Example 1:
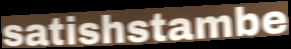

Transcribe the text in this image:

satishstambe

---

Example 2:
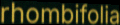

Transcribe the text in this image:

rhombifolia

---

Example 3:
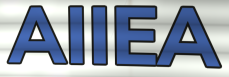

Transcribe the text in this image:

AIIEA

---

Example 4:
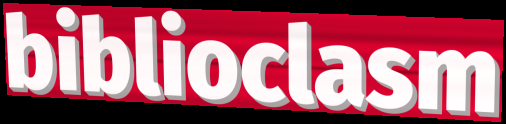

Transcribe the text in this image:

biblioclasm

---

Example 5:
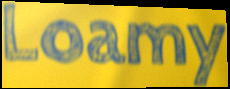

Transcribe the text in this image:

Loamy